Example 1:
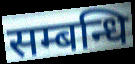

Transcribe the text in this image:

सम्बन्धि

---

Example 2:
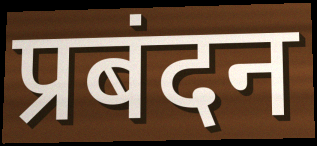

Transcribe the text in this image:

प्रबंदन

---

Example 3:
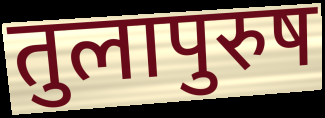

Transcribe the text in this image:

तुलापुरुष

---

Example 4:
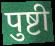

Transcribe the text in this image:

पुष्टी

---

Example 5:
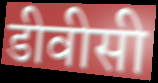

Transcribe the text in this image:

डीवीसी